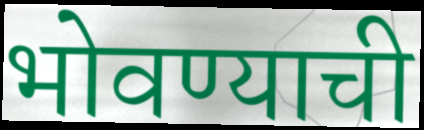
भोवण्याची